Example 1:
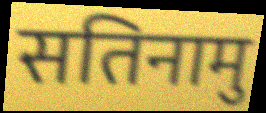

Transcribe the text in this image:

सतिनामु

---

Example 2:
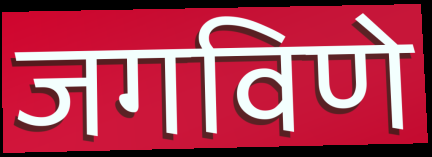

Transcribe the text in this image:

जगविणे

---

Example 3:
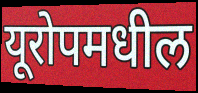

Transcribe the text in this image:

यूरोपमधील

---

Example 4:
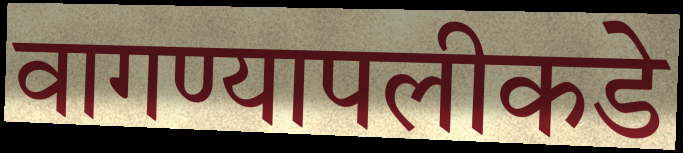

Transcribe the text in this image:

वागण्यापलीकडे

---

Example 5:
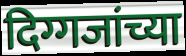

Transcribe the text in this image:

दिग्गजांच्या